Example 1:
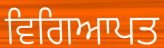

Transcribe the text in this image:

ਵਿਗਿਆਪਤ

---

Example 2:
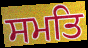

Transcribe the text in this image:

ਸਮਤਿ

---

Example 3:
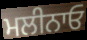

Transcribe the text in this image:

ਮਲੀਨਾਓ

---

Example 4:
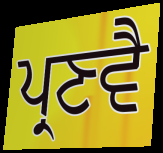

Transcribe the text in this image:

ਪ੍ਰਣਵੈ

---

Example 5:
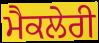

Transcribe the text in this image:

ਮੈਕਲੇਰੀ